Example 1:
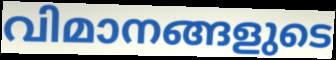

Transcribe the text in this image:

വിമാനങ്ങളുടെ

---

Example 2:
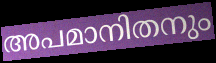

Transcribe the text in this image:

അപമാനിതനും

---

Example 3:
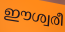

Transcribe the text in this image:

ഈശ്വരീ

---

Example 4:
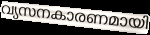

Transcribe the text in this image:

വ്യസനകാരണമായി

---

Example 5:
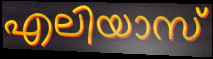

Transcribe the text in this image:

എലിയാസ്